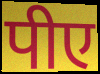
पीए